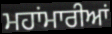
ਮਹਾਂਮਾਰੀਆਂ